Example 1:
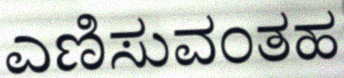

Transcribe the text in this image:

ಎಣಿಸುವಂತಹ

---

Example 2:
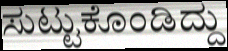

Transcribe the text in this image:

ಸುಟ್ಟುಕೊಂಡಿದ್ದು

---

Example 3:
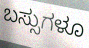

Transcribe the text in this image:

ಬಸ್ಸುಗಳೂ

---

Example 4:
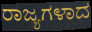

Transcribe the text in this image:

ರಾಜ್ಯಗಳಾದ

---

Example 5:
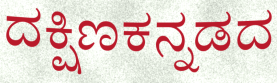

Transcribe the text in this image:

ದಕ್ಷಿಣಕನ್ನಡದ